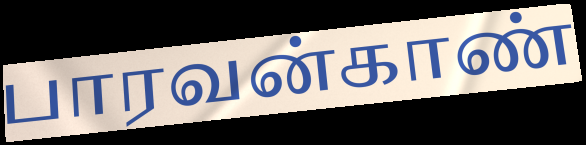
பாரவன்காண்